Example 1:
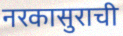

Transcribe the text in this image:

नरकासुराची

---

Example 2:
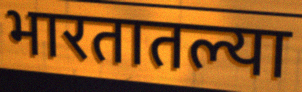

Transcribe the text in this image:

भारतातल्या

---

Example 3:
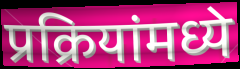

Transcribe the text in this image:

प्रक्रियांमध्ये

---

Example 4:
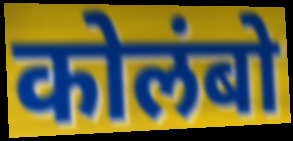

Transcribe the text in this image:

कोलंबो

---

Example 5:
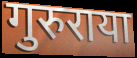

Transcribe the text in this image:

गुरुराया